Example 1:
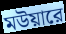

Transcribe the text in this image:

মউয়ারে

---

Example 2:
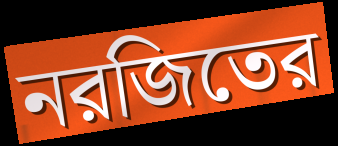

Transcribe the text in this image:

নরজিতের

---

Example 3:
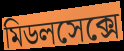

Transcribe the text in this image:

মিডলসেক্সে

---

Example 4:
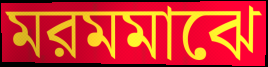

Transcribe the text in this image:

মরমমাঝে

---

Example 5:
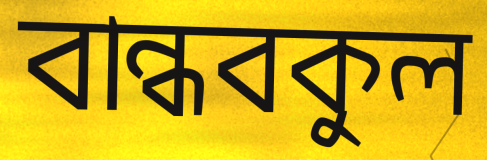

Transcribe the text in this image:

বান্ধবকুল